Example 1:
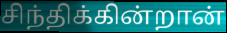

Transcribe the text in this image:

சிந்திக்கின்றான்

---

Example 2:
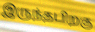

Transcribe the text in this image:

இருந்தபிறகு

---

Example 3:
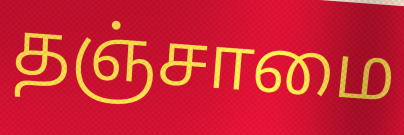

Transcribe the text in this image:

தஞ்சாமை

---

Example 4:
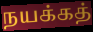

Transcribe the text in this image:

நயக்கத்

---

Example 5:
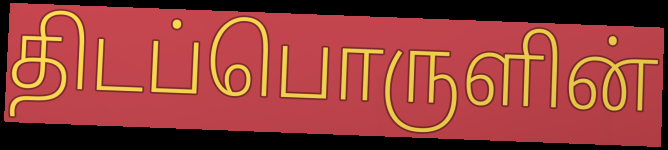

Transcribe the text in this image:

திடப்பொருளின்